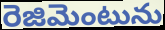
రెజిమెంటును